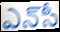
ఎన్‌సీ